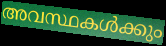
അവസ്ഥകൾക്കും